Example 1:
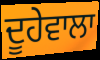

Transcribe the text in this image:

ਦੂਹੇਵਾਲਾ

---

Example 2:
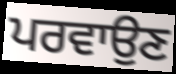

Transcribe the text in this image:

ਪਰਵਾਉਣ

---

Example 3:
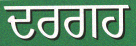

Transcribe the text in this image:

ਦਰਗਹ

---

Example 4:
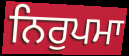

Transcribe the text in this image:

ਨਿਰੁਪਮਾ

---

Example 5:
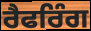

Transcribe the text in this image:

ਰੈਫਰਿੰਗ